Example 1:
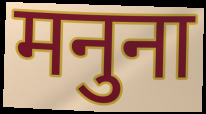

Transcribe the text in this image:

मनुना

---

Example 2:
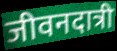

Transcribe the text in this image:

जीवनदात्री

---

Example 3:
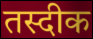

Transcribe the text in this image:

तस्‍दीक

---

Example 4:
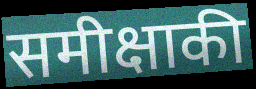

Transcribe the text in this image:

समीक्षाकी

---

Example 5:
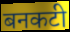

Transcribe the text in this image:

बनकटी